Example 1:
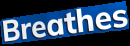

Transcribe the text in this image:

Breathes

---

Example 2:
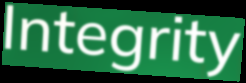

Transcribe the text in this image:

Integrity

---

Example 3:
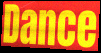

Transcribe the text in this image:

Dance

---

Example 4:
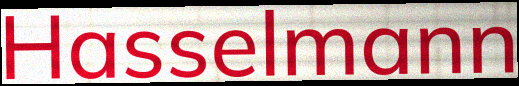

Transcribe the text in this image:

Hasselmann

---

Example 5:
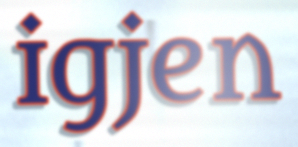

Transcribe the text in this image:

igjen